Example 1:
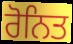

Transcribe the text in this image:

ਰੋਨਿਤ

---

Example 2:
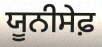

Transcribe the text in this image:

ਯੂਨੀਸੇਫ਼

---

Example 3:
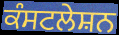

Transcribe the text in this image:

ਕੰਸਟਲੇਸ਼ਨ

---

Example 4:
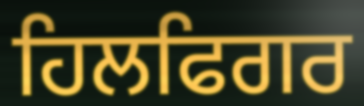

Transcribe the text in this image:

ਹਿਲਫਿਗਰ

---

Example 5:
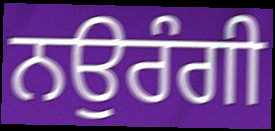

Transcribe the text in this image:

ਨਉਰੰਗੀ